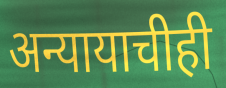
अन्यायाचीही